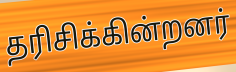
தரிசிக்கின்றனர்